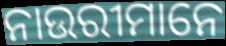
ନାଉରୀମାନେ